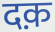
दक़